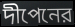
দীপেনের